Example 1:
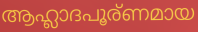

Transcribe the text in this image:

ആഹ്ലാദപൂര്ണമായ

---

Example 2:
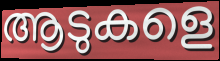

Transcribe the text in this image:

ആടുകളെ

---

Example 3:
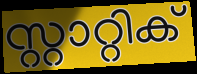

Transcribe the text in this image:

സ്റ്റാറ്റിക്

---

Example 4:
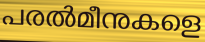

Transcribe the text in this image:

പരൽമീനുകളെ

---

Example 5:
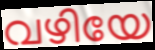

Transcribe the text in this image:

വഴിയേ